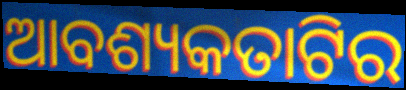
ଆବଶ୍ୟକତାଟିର